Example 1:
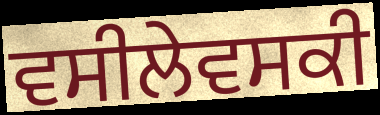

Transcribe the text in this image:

ਵਸੀਲੇਵਸਕੀ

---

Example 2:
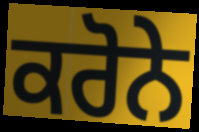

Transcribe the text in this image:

ਕਰੋਨੇ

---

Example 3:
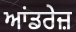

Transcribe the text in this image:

ਆਂਡਰੇਜ਼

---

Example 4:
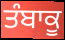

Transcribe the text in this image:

ਤੰਬਾਕੂ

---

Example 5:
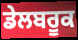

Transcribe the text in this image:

ਡੇਲਬਰੂਕ